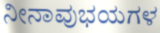
ನೀನಾವುಭಯಗಳ